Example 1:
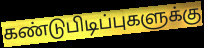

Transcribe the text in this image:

கண்டுபிடிப்புகளுக்கு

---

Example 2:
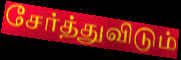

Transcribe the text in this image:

சேர்த்துவிடும்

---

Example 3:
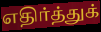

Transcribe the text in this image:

எதிர்த்துக்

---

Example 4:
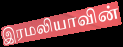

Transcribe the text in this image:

இரமலியாவின்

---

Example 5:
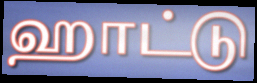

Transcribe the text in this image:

ஹாட்டு